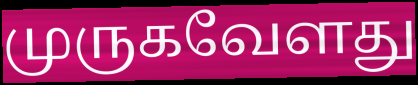
முருகவேளது